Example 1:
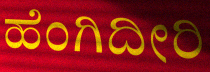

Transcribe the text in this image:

ಹೆಂಗಿದೀರಿ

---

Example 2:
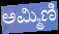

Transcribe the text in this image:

ಅಮ್ಮಿಣಿ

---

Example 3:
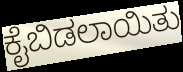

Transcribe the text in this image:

ಕೈಬಿಡಲಾಯಿತು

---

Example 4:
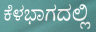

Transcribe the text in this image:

ಕೆಳಭಾಗದಲ್ಲಿ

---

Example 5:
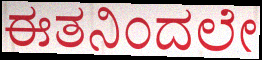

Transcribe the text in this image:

ಈತನಿಂದಲೇ